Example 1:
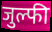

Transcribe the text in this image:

जुल्फी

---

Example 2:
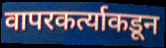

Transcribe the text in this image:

वापरकर्त्याकडून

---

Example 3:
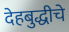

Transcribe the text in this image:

देहबुद्धीचे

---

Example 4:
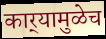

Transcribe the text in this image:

कार्यामुळेच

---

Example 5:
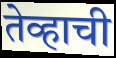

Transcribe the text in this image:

तेव्हाची